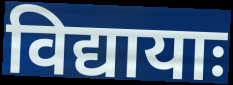
विद्यायाः